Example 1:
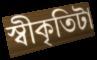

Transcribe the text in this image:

স্বীকৃতিটা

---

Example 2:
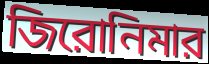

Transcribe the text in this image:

জিরোনিমার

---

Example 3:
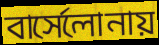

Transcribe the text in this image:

বার্সেলোনায়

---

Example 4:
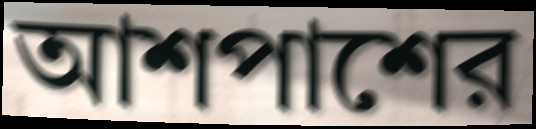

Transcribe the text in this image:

আশপাশের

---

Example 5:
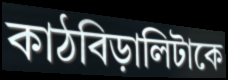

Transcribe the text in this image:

কাঠবিড়ালিটাকে